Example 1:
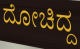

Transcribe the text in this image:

ದೋಚಿದ್ದ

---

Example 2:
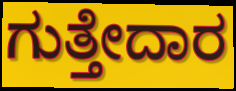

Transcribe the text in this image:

ಗುತ್ತೇದಾರ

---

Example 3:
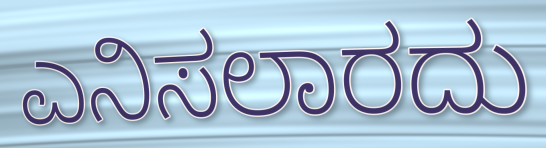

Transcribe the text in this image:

ಎನಿಸಲಾರದು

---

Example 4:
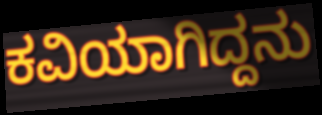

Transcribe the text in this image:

ಕವಿಯಾಗಿದ್ದನು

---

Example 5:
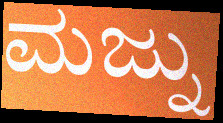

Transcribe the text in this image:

ಮಜ್ನು